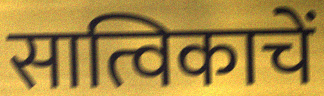
सात्विकाचें